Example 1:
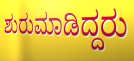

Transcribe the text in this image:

ಶುರುಮಾಡಿದ್ದರು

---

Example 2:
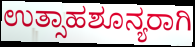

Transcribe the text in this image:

ಉತ್ಸಾಹಶೂನ್ಯರಾಗಿ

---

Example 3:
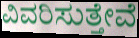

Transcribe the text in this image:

ವಿವರಿಸುತ್ತೇವೆ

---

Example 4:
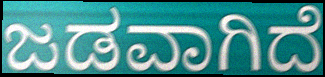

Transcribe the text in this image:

ಜಡವಾಗಿದೆ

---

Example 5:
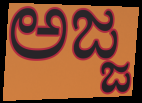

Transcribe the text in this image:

ಅಜ್ಜ